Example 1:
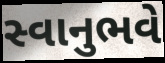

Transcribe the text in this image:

સ્વાનુભવે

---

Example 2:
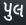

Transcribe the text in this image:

પુલ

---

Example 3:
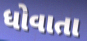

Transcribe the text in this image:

ધોવાતા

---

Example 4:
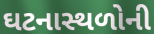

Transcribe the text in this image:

ઘટનાસ્થળોની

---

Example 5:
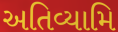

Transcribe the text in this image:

અતિવ્યામિ